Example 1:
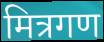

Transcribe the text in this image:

मित्रगण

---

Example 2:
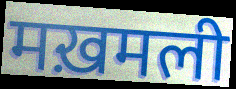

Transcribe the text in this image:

मख़मली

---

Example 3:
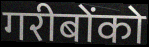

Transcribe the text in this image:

गरीबोंको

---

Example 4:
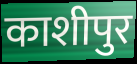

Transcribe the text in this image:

काशीपुर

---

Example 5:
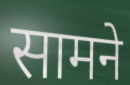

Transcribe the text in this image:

सामने